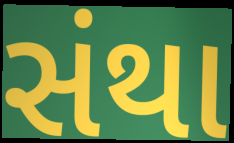
સંથા